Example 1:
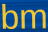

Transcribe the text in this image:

bm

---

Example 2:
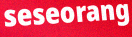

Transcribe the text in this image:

seseorang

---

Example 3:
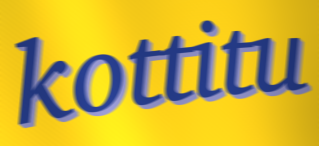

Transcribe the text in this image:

kottitu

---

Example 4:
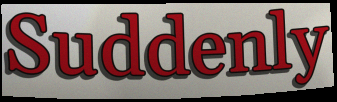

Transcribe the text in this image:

Suddenly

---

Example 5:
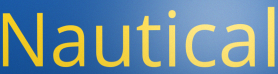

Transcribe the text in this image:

Nautical